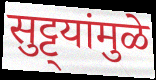
सुट्ट्यांमुळे